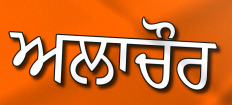
ਅਲਾਚੌਰ